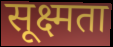
सूक्ष्मता